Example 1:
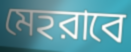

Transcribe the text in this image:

মেহরাবে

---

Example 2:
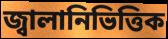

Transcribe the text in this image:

জ্বালানিভিত্তিক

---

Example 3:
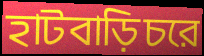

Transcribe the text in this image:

হাটবাড়িচরে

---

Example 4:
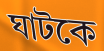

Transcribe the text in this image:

ঘাটকে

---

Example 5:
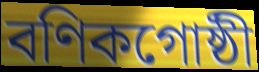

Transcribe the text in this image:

বণিকগোষ্ঠী